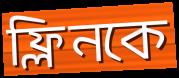
ফ্লিনকে